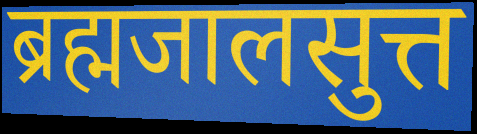
ब्रह्मजालसुत्त